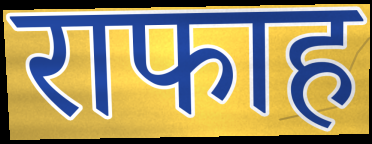
राफाह